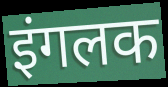
इंगलक